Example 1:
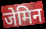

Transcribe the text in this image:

जेमिन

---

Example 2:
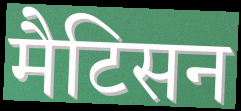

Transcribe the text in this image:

मैटिसन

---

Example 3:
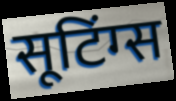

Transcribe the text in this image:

सूटिंग्स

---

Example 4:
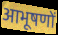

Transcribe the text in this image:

आभूषणों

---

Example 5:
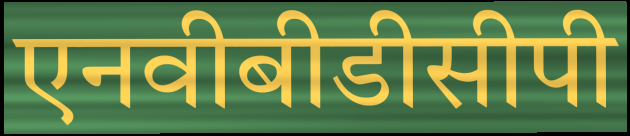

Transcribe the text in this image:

एनवीबीडीसीपी